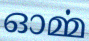
ഓൎമ്മ